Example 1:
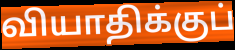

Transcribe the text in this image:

வியாதிக்குப்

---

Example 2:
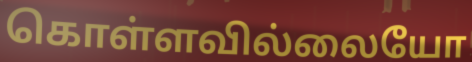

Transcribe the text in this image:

கொள்ளவில்லையோ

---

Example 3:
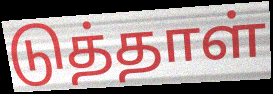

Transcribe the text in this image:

டுத்தாள்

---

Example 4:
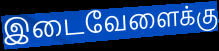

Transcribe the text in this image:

இடைவேளைக்கு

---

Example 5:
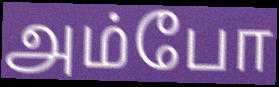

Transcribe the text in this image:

அம்போ